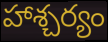
హాశ్చర్యం